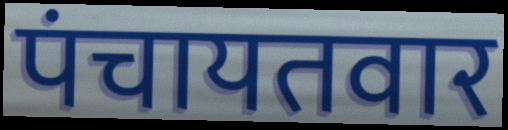
पंचायतवार